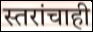
स्तरांचाही